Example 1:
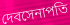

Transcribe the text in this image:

দেবসেনাপতি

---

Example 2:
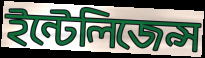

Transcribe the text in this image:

ইন্টেলিজেন্স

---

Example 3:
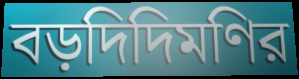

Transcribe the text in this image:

বড়দিদিমণির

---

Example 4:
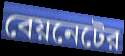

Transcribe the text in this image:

বেয়নেটের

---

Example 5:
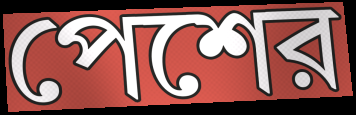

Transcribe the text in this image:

পেশের